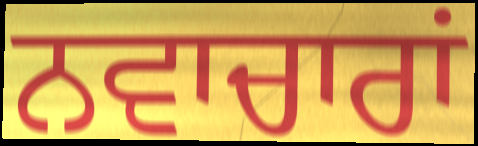
ਨਵਾਚਾਰਾਂ